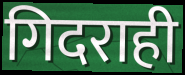
गिदराही